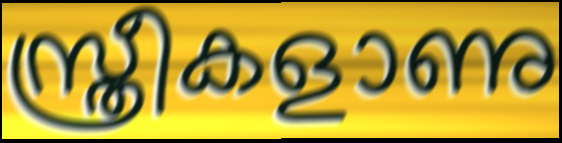
സ്ത്രീകളാണു